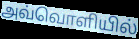
அவ்வொளியில்